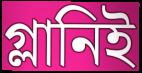
গ্লানিই